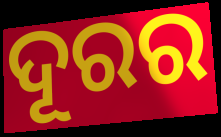
ଦୂରର